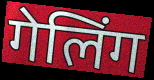
गेलिंग